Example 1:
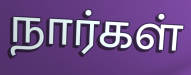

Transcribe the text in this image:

நார்கள்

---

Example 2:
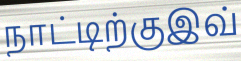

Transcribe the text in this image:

நாட்டிற்குஇவ்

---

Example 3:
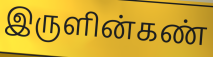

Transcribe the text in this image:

இருளின்கண்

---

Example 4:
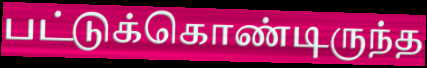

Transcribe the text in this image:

பட்டுக்கொண்டிருந்த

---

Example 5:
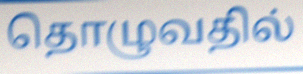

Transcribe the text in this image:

தொழுவதில்